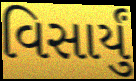
વિસાર્યું